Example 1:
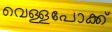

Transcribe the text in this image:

വെള്ളപോക്ക്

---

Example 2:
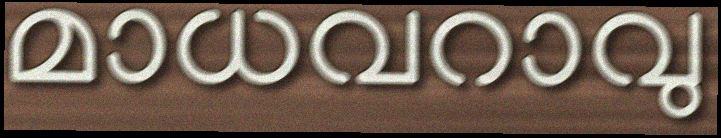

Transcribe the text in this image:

മാധവറാവു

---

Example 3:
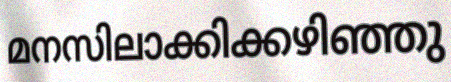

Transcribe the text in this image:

മനസിലാക്കിക്കഴിഞ്ഞു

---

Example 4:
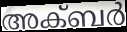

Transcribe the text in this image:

അക്ബർ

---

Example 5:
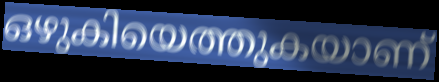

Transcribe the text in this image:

ഒഴുകിയെത്തുകയാണ്